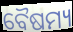
ବୈଷମ୍ୟ